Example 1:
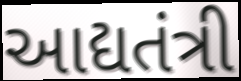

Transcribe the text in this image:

આદ્યતંત્રી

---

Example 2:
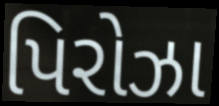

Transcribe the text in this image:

પિરોઝા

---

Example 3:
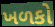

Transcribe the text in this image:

ખળકો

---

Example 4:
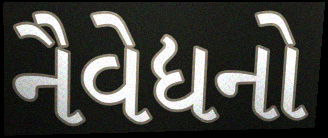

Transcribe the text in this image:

નૈવેદ્યનો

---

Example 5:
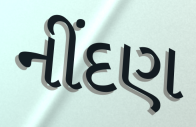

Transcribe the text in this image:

નીંદણ